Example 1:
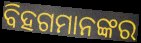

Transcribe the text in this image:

ବିହଗମାନଙ୍କର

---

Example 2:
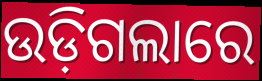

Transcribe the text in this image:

ଉଡ଼ିଗଲାରେ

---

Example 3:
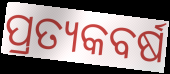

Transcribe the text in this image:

ପ୍ରତ୍ୟକବର୍ଷ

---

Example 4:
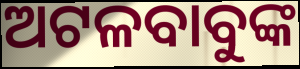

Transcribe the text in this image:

ଅଟଳବାବୁଙ୍କ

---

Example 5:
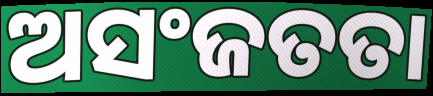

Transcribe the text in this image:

ଅସଂଜତତା